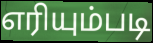
எரியும்படி